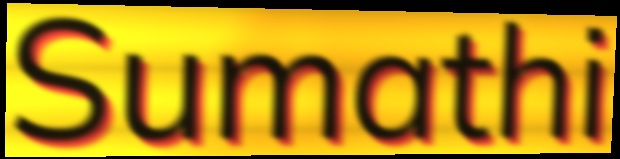
Sumathi